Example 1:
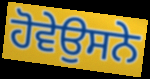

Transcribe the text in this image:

ਹੋਵੇਉਸਨੇ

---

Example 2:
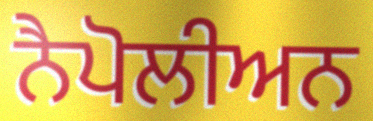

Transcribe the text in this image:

ਨੈਪੋਲੀਅਨ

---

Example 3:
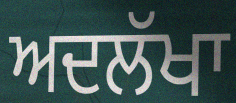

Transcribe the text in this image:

ਅਦਲੱਖਾ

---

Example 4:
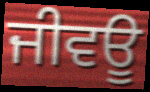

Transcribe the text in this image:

ਜੀਵਊ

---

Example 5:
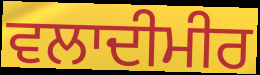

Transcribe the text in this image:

ਵਲਾਦੀਮੀਰ